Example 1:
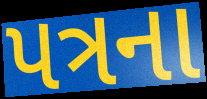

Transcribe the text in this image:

પત્રના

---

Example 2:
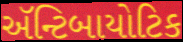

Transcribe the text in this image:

ઍન્ટિબાયોટિક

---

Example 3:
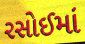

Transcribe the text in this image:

રસોઈમાં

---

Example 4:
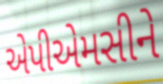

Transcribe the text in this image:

એપીએમસીને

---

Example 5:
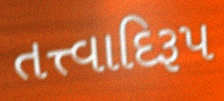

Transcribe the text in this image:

તત્ત્વાદિરૂપ